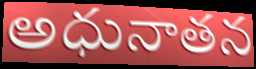
అధునాతన